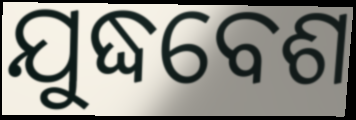
ଯୁଦ୍ଧବେଶ